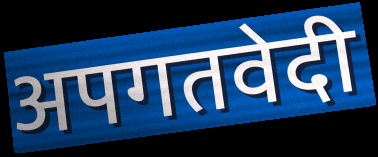
अपगतवेदी